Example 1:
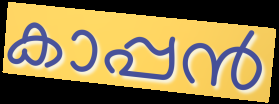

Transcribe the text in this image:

കാപ്പൻ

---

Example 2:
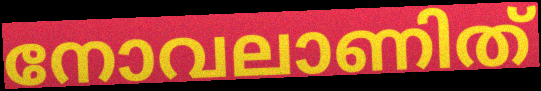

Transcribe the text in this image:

നോവലാണിത്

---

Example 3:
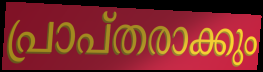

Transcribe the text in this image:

പ്രാപ്തരാക്കും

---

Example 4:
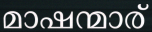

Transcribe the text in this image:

മാഷന്മാര്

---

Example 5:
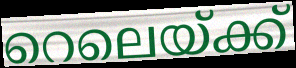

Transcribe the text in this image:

റെലെയ്ക്ക്